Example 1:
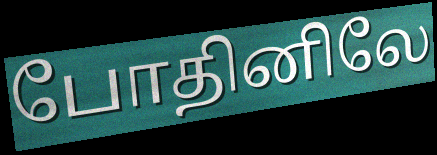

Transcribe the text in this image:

போதினிலே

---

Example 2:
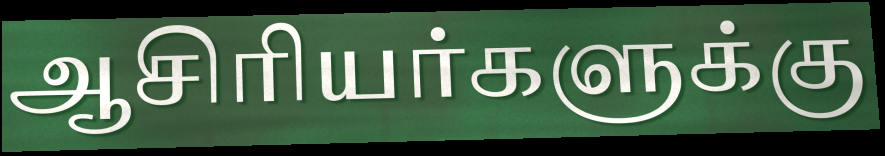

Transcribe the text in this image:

ஆசிரியர்களுக்கு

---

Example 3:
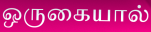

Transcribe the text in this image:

ஒருகையால்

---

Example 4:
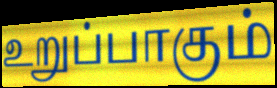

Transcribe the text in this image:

உறுப்பாகும்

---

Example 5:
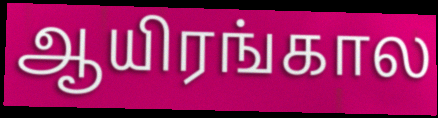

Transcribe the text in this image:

ஆயிரங்கால